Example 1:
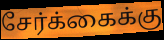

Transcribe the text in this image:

சேர்க்கைக்கு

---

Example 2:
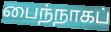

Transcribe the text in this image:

பைந்நாகப்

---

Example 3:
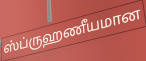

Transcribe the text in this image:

ஸ்ப்ருஹணீயமான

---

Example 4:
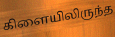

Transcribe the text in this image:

கிளையிலிருந்த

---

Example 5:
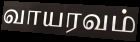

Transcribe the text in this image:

வாயரவம்